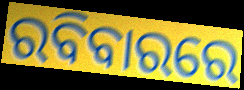
ରବିବାରରେ